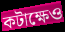
কটাক্ষেও